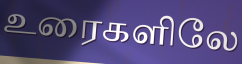
உரைகளிலே